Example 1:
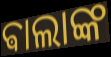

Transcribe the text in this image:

ଵାଲାଙ୍କ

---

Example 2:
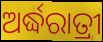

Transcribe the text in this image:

ଅର୍ଦ୍ଧରାତ୍ରୀ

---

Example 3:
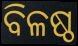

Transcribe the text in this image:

ବିଳଷ୍ଠ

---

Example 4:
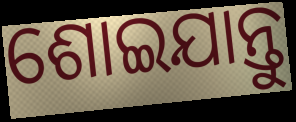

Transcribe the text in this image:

ଶୋଇଯାନ୍ତୁ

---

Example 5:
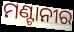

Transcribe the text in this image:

ମଣ୍ଟାନୀର